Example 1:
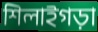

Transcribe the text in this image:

শিলাইগড়া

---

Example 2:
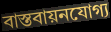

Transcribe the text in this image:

বাস্তবায়নযোগ্য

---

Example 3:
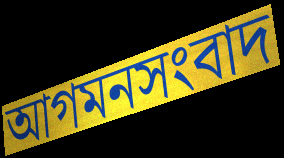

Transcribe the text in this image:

আগমনসংবাদ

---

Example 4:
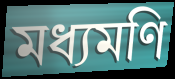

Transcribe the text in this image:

মধ্যমণি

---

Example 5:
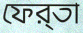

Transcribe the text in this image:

ফের্‌তা